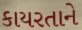
કાયરતાને